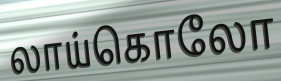
லாய்கொலோ